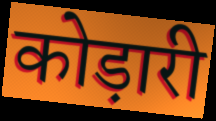
कोड़ारी